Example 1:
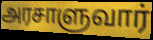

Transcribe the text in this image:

அரசாளுவார்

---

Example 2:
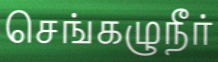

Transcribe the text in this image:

செங்கழுநீர்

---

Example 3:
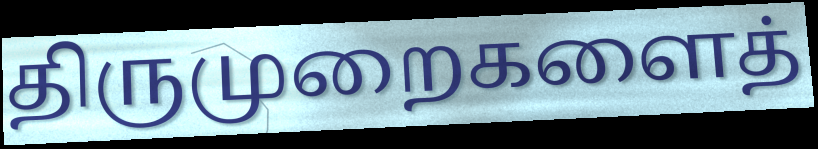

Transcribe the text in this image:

திருமுறைகளைத்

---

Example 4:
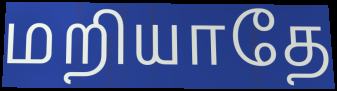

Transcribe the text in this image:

மறியாதே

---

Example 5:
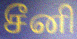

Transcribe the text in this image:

சீனி